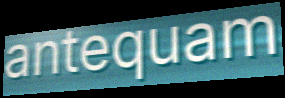
antequam